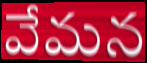
వేమన